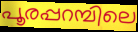
പൂരപ്പറമ്പിലെ